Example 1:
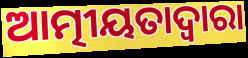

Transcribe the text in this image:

ଆତ୍ମୀୟତାଦ୍ଵାରା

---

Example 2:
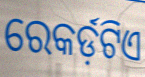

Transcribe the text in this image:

ରେକର୍ଡ଼ଟିଏ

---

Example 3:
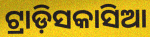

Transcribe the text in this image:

ଟ୍ରାଡ଼ିସକାସିଆ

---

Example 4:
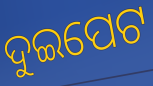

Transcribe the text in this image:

ଦୁଇପେଟ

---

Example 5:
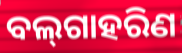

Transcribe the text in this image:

ବଲ୍‌ଗାହରିଣ